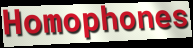
Homophones